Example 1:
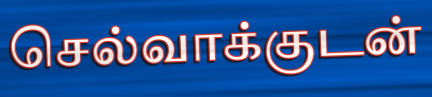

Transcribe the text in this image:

செல்வாக்குடன்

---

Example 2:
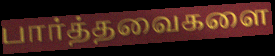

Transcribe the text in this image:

பார்த்தவைகளை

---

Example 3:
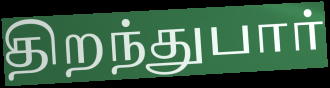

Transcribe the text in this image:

திறந்துபார்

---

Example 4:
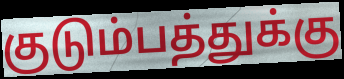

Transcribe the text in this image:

குடும்பத்துக்கு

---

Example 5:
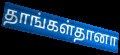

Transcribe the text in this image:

தாங்கள்தானா